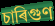
চাৰিগুণ